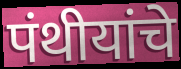
पंथीयांचे